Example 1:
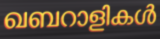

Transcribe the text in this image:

ഖബറാളികൾ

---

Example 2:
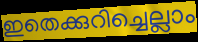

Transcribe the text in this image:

ഇതെക്കുറിച്ചെല്ലാം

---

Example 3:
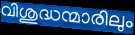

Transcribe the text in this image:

വിശുദ്ധന്മാരിലും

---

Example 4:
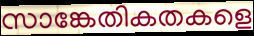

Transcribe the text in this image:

സാങ്കേതികതകളെ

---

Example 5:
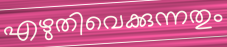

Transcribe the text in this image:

എഴുതിവെക്കുന്നതും